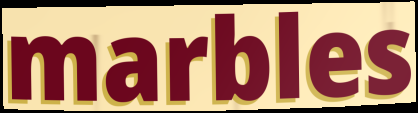
marbles